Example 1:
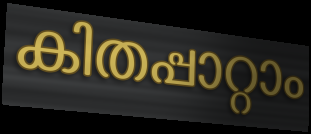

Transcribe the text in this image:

കിതപ്പാറ്റാം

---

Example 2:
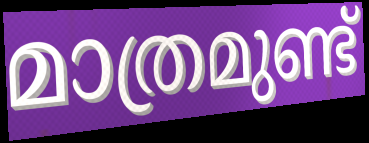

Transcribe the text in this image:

മാത്രമുണ്ട്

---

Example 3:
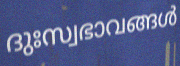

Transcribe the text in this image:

ദുഃസ്വഭാവങ്ങൾ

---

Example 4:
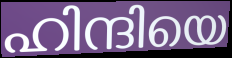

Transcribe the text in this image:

ഹിന്ദിയെ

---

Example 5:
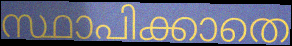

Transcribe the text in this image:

സ്ഥാപിക്കാതെ